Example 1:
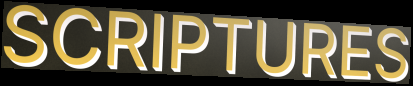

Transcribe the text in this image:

SCRIPTURES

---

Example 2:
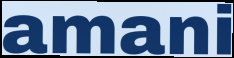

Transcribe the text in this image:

amani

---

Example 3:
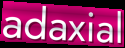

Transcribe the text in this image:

adaxial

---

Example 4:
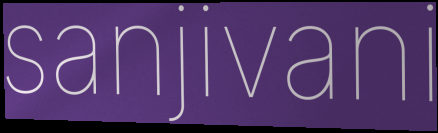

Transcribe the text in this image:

sanjivani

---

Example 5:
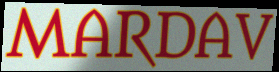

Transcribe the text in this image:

MARDAV